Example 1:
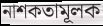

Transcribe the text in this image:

নাশকতামূলক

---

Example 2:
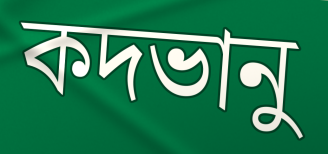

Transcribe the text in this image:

কদভানু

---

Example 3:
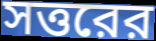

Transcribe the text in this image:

সত্তরের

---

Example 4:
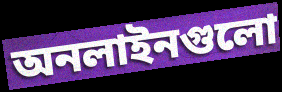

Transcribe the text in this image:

অনলাইনগুলো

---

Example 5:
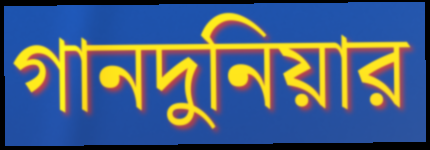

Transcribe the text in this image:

গানদুনিয়ার